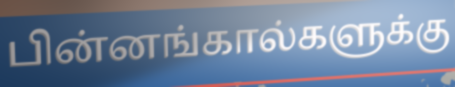
பின்னங்கால்களுக்கு